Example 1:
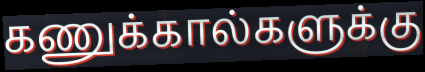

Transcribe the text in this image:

கணுக்கால்களுக்கு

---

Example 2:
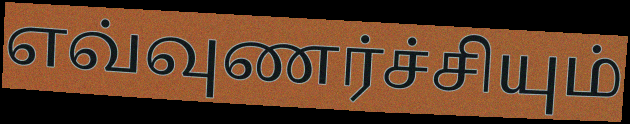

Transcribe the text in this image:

எவ்வுணர்ச்சியும்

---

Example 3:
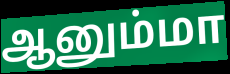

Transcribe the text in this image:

ஆனும்மா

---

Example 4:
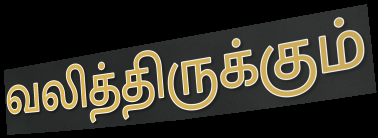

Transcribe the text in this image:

வலித்திருக்கும்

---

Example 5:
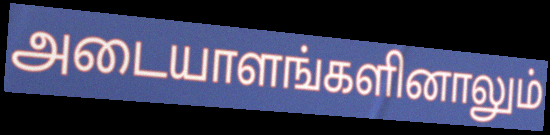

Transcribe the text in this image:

அடையாளங்களினாலும்